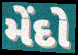
મેંદો